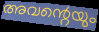
അവന്റെയും